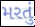
મરતું